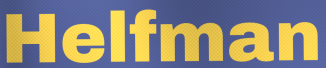
Helfman